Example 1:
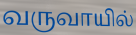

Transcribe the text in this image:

வருவாயில்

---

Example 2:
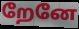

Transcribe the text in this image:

றேனே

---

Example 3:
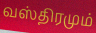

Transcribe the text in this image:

வஸ்திரமும்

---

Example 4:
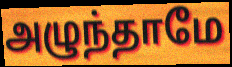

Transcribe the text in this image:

அழுந்தாமே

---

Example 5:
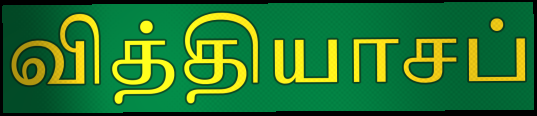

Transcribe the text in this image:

வித்தியாசப்